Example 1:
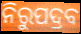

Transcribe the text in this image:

ନିରୁପଦ୍ରବ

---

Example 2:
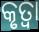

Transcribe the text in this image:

କୃତ୍ଵା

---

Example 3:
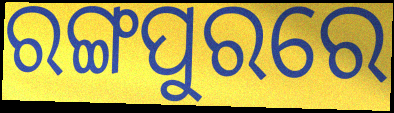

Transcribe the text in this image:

ରଙ୍ଗପୁରରେ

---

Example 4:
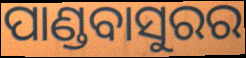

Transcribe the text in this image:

ପାଣ୍ଡବାସୁରର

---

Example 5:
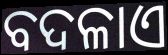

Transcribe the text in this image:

ବଦଳାଏ